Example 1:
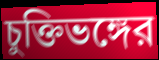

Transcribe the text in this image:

চুক্তিভঙ্গের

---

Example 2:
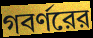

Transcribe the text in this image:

গবর্ণরের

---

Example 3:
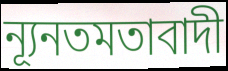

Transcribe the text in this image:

ন্যূনতমতাবাদী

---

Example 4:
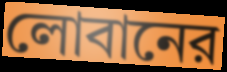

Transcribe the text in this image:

লোবানের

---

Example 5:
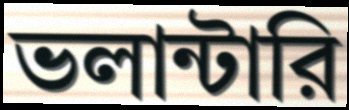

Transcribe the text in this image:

ভলান্টারি